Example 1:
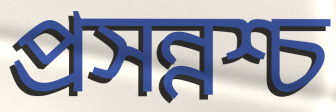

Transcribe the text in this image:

প্রসন্নশ্চ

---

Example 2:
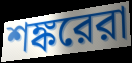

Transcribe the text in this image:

শঙ্করেরা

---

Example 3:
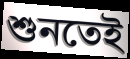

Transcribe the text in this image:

শুনতেই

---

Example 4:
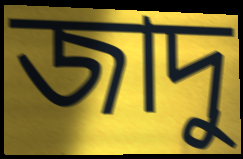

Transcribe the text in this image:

জাদু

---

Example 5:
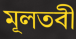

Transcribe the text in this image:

মূলতবী